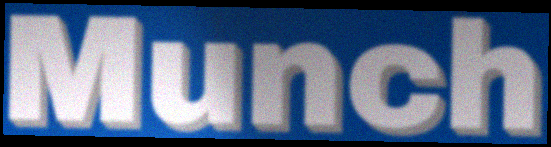
Munch